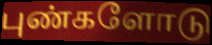
புண்களோடு